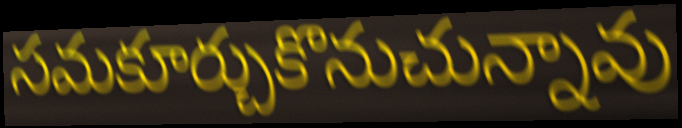
సమకూర్చుకొనుచున్నావు